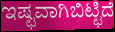
ಇಷ್ಟವಾಗಿಬಿಟ್ಟಿದೆ